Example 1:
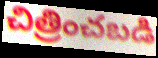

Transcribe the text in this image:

చిత్రించబడి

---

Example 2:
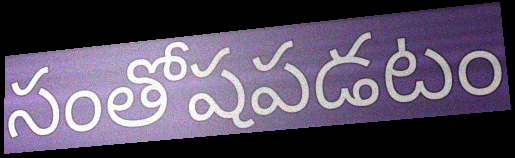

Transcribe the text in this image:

సంతోషపడటం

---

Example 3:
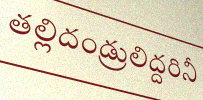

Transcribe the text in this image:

తల్లిదండ్రులిద్దరినీ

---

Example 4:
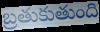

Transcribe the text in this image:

బ్రతుకుతుంది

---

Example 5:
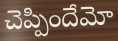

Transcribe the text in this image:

చెప్పిందేమో